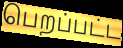
பெறப்பட்ட